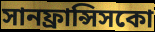
সানফ্রান্সিসকো